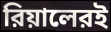
রিয়ালেরই